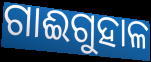
ଗାଈଗୁହାଳ